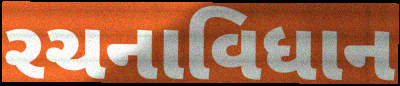
રચનાવિધાન